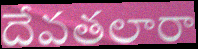
దేవతలారా